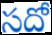
సదో